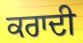
ਕਰਾਦੀ